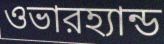
ওভারহ্যান্ড